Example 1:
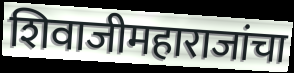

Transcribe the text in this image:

शिवाजीमहाराजांचा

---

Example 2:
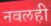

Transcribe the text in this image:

नवलही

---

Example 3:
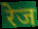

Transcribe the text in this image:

रेज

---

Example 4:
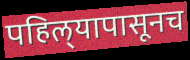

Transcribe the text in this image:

पहिल्यापासूनच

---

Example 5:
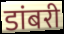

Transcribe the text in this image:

डांबरी